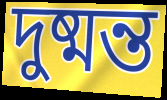
দুষ্মন্ত